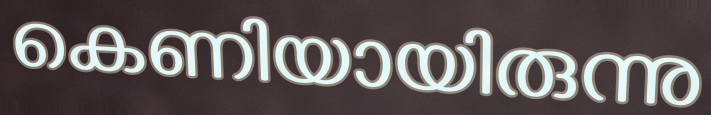
കെണിയായിരുന്നു